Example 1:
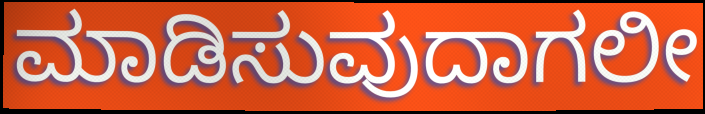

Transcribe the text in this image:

ಮಾಡಿಸುವುದಾಗಲೀ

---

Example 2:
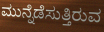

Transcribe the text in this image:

ಮುನ್ನೆಡೆಸುತ್ತಿರುವ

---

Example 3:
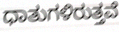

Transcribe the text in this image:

ಧಾತುಗಳಿರುತ್ತವೆ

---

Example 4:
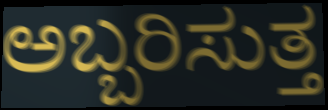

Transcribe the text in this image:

ಅಬ್ಬರಿಸುತ್ತ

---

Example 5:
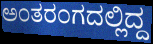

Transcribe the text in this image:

ಅಂತರಂಗದಲ್ಲಿದ್ದ